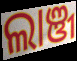
ଲାଞ୍ଜ